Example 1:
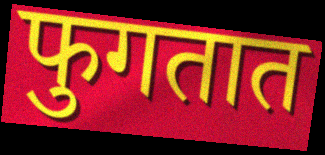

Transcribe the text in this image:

फुगतात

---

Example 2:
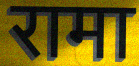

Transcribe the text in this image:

रामा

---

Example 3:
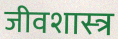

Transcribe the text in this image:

जीवशास्त्र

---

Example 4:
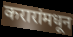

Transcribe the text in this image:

करारांमधून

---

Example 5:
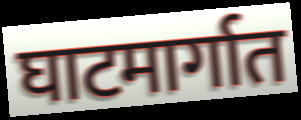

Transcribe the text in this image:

घाटमार्गात